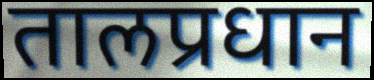
तालप्रधान